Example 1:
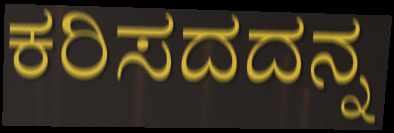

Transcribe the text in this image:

ಕರಿಸದದನ್ನ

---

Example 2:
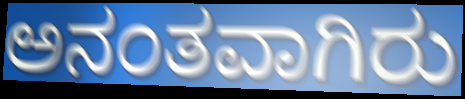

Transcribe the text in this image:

ಅನಂತವಾಗಿರು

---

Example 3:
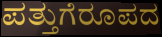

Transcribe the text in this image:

ಪತ್ತುಗೆರೂಪದ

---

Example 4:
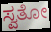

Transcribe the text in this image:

ಸ್ವತೋ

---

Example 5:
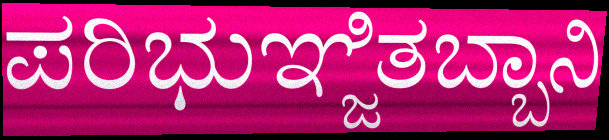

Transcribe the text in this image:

ಪರಿಭುಞ್ಜಿತಬ್ಬಾನಿ